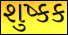
શુષ્કક